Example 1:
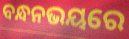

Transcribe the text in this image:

ବନ୍ଧନଭୟରେ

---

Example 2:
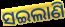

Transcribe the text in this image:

ସଇଲାଣି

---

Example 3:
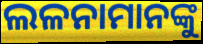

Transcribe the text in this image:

ଲଳନାମାନଙ୍କୁ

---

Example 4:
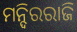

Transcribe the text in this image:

ମନ୍ଦିରରାଜି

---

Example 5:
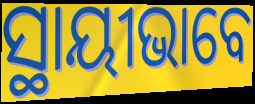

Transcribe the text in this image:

ସ୍ଥାୟୀଭାବେ